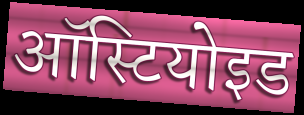
ऑस्टियोइड